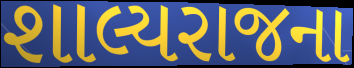
શાલ્યરાજના